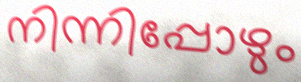
നിന്നിപ്പോഴും